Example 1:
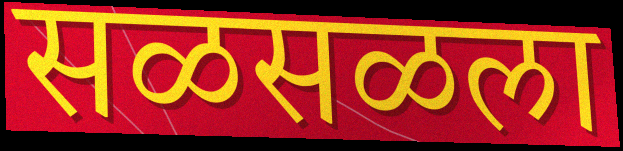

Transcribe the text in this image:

सळसळला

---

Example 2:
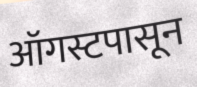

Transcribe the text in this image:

ऑगस्टपासून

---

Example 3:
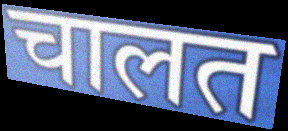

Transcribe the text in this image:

चालत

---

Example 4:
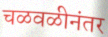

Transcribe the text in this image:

चळवळीनंतर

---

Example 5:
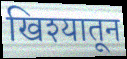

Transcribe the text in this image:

खिश्यातून